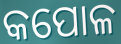
କପୋଳ